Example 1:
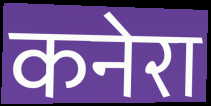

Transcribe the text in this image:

कनेरा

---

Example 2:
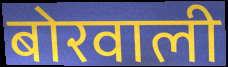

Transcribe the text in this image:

बोरवाली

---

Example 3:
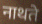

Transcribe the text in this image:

नाथते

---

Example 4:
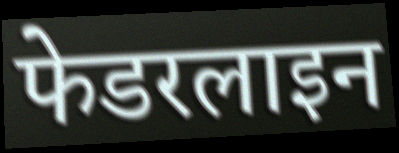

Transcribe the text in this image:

फेडरलाइन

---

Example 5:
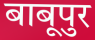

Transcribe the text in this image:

बाबूपुर